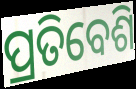
ପ୍ରତିବେଶି